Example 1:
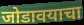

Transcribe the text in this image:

जोडावयाचा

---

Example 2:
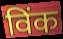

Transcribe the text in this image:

विंक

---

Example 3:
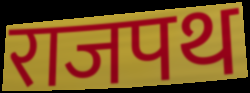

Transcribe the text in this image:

राजपथ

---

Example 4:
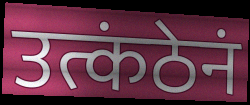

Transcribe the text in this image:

उत्कंठेनं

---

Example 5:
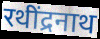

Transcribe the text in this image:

रथींद्रनाथ